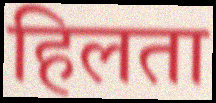
हिलता